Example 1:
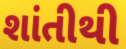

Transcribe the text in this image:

શાંતીથી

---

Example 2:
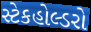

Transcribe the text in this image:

સ્ટેકહોલ્ડરો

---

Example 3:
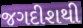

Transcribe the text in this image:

જગદીશથી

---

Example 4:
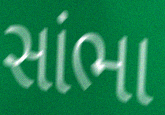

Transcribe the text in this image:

સાંભા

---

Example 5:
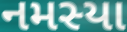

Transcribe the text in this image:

નમસ્યા